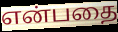
என்பதை